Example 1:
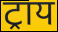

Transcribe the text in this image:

ट्राय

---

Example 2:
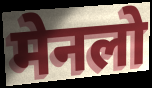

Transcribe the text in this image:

मेनलो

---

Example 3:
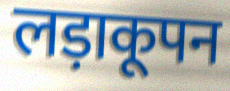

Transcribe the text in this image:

लड़ाकूपन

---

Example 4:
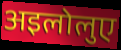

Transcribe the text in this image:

अइलोलुए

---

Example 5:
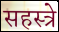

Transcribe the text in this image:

सहस्त्रे